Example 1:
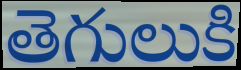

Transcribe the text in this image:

తెగులుకి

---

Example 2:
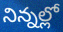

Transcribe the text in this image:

నిన్నల్లో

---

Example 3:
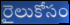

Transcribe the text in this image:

రైలుకోసం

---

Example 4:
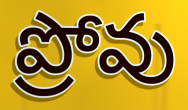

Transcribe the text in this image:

ప్రోవు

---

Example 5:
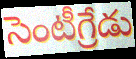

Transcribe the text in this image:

సెంటీగ్రేడు